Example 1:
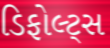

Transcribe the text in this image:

ડિફોલ્ટ્સ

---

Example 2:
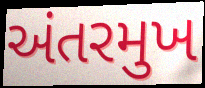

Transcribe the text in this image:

અંતરમુખ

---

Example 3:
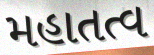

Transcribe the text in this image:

મહાતત્વ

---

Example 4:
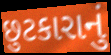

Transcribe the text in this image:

છુટકારાનું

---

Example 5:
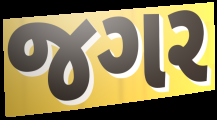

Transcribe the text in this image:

જગર